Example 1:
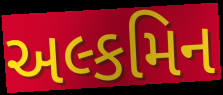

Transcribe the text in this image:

અલ્કમિન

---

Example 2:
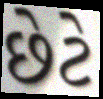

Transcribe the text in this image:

છેટે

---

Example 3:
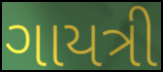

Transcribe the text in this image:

ગાયત્રી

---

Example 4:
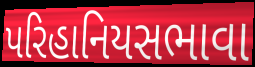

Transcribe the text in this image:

પરિહાનિયસભાવા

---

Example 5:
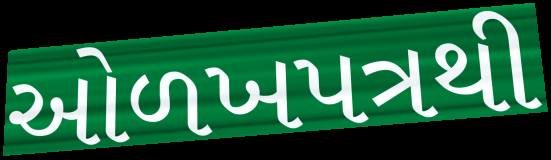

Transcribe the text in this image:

ઓળખપત્રથી